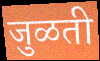
जुळती